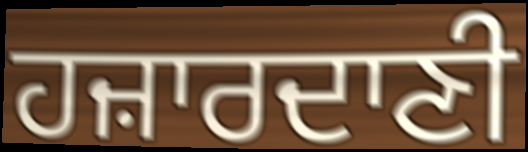
ਹਜ਼ਾਰਦਾਣੀ